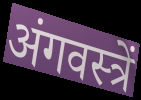
अंगवस्त्रें